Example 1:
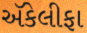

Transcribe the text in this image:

ઍકેલીફા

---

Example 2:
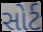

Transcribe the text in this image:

સોર્ટ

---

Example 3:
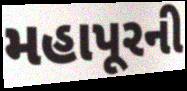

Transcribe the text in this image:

મહાપૂરની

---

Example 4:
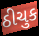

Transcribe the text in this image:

ઠીચુક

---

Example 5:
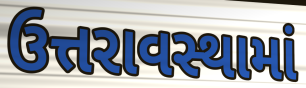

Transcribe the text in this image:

ઉત્તરાવસ્થામાં